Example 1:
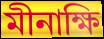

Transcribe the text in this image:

মীনাক্ষি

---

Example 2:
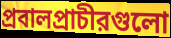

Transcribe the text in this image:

প্রবালপ্রাচীরগুলো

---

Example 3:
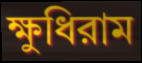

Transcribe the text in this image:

ক্ষুধিরাম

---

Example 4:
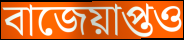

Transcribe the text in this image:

বাজেয়াপ্তও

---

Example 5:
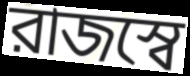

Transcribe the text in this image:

রাজস্বে